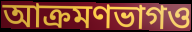
আক্রমণভাগও